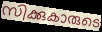
സിക്കുകാരുടെ